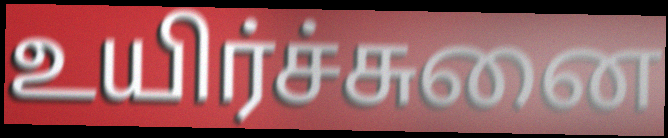
உயிர்ச்சுனை